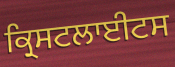
ਕ੍ਰਿਸਟਲਾਈਟਸ